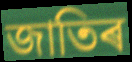
জাতিৰ